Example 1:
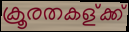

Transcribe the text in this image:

ക്രൂരതകള്ക്ക്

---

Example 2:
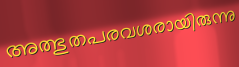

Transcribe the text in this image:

അത്ഭുതപരവശരായിരുന്നു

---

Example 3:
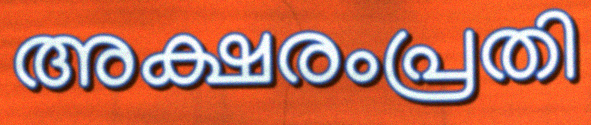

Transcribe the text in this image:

അക്ഷരംപ്രതി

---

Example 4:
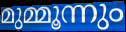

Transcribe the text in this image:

മുമ്മൂന്നും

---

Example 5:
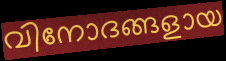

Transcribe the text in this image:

വിനോദങ്ങളായ